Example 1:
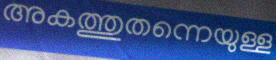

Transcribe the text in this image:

അകത്തുതന്നെയുള്ള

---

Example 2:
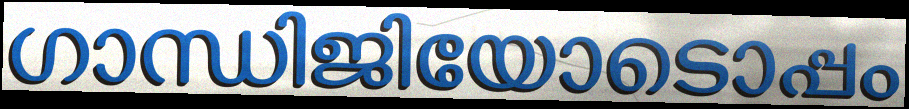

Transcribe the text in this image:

ഗാന്ധിജിയോടൊപ്പം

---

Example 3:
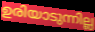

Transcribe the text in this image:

ഉരിയാടുന്നില്ല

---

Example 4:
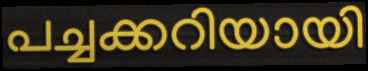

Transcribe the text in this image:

പച്ചക്കറിയായി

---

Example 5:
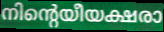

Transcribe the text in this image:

നിന്റെയീയക്ഷരാ